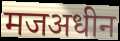
मजअधीन